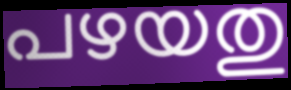
പഴയതു